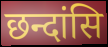
छन्दांसि